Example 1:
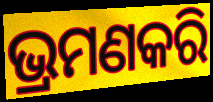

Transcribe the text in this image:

ଭ୍ରମଣକରି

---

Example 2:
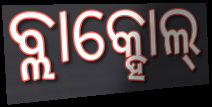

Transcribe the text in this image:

ବ୍ଲାକ୍ହୋଲ୍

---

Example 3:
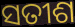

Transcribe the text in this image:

ସତୀଶ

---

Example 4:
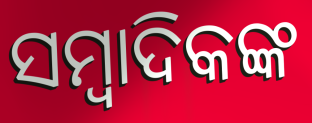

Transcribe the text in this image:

ସମ୍ୱାଦିକଙ୍କ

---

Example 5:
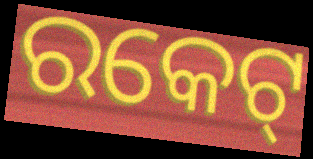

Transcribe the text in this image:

ରକେଟ୍